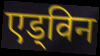
एड्विन